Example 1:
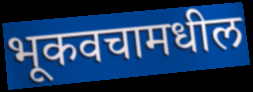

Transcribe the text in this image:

भूकवचामधील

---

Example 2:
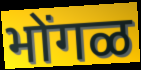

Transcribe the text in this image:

भोंगळ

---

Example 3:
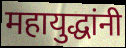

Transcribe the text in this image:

महायुद्धांनी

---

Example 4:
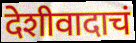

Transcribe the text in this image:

देशीवादाचं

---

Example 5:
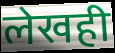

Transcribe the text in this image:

लेखही